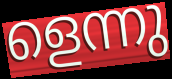
ളെന്നു